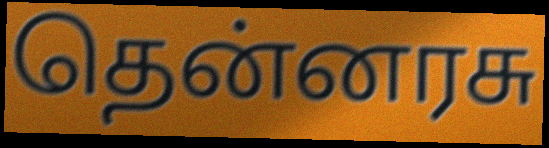
தென்னரசு